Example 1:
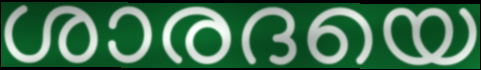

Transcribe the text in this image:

ശാരദയെ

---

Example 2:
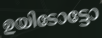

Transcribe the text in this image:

ഉയിടോട്ടോ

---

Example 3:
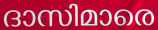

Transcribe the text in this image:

ദാസിമാരെ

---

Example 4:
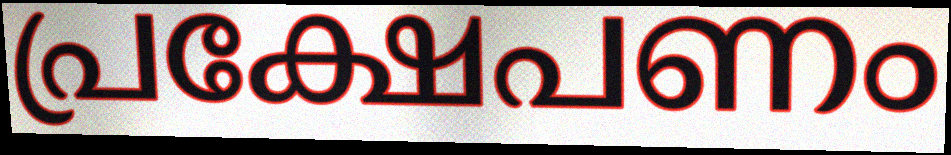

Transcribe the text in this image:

പ്രക്ഷേപണം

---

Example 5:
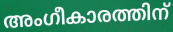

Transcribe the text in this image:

അംഗീകാരത്തിന്